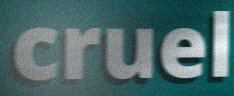
cruel